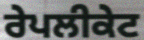
ਰੇਪਲੀਕੇਟ